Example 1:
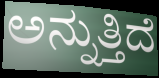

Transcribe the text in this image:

ಅನ್ನುತ್ತಿದೆ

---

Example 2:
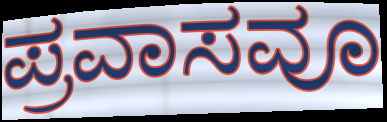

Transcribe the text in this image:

ಪ್ರವಾಸವೂ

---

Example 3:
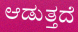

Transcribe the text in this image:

ಆಡುತ್ತದೆ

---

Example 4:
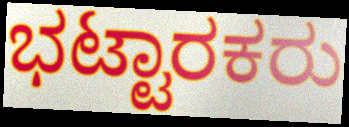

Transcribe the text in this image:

ಭಟ್ಟಾರಕರು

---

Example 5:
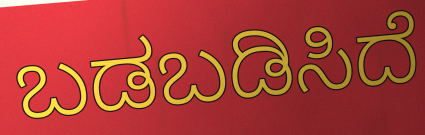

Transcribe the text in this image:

ಬಡಬಡಿಸಿದೆ